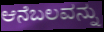
ಆನೆಬಲವನ್ನು